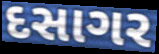
દસાગર